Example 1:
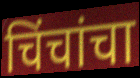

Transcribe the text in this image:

चिंचांचा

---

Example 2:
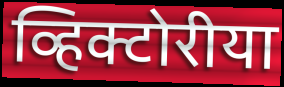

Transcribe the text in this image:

व्हिक्टोरीया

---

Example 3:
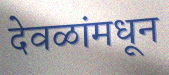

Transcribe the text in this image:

देवळांमधून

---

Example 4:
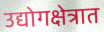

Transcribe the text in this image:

उद्योगक्षेत्रात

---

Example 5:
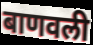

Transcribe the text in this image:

बाणवली